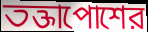
তক্তাপোশের